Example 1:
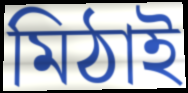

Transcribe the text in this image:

মিঠাই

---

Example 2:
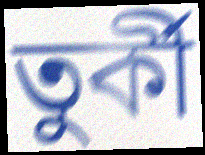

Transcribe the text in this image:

তুৰ্কী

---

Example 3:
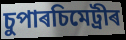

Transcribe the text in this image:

চুপাৰচিমেট্ৰীৰ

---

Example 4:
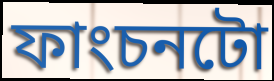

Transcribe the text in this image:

ফাংচনটো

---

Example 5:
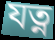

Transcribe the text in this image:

যত্ন